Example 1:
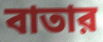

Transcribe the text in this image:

বাতার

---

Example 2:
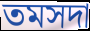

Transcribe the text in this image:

তমসদা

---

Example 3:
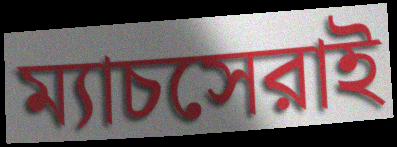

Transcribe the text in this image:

ম্যাচসেরাই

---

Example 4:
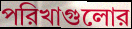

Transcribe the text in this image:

পরিখাগুলোর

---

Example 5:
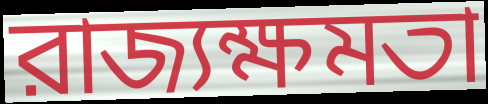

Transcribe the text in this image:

রাজ্যক্ষমতা